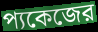
প্যকেজের